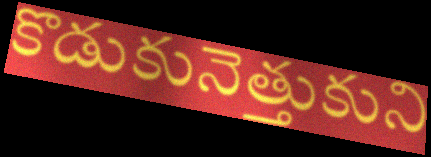
కొడుకునెత్తుకుని